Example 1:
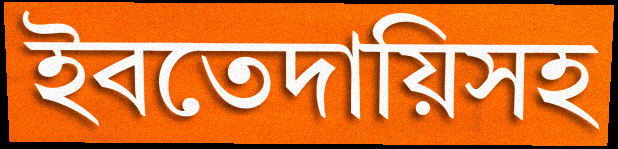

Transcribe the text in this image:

ইবতেদায়িসহ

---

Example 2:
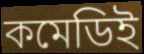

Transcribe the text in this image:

কমেডিই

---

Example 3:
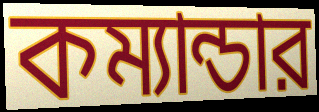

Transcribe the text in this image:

কম্যান্ডার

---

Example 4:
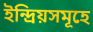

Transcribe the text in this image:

ইন্দ্রিয়সমূহে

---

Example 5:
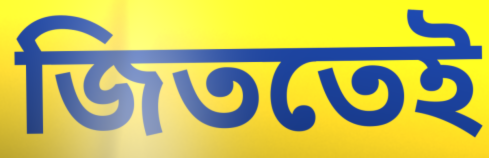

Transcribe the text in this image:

জিততেই